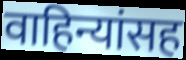
वाहिन्यांसह